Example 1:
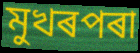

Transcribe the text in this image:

মুখৰপৰা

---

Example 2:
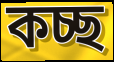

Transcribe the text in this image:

কচ্ছ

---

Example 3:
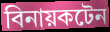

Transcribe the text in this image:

বিনায়কটেন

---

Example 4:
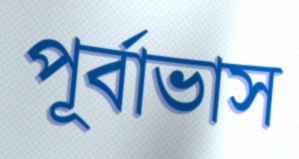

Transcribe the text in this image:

পূৰ্বাভাস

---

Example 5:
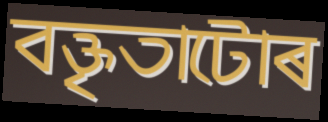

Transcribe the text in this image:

বক্তৃতাটোৰ